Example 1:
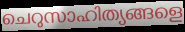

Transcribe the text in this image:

ചെറുസാഹിത്യങ്ങളെ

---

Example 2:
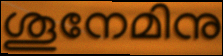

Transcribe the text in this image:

ശൂനേമിനു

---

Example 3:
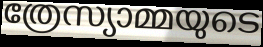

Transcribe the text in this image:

ത്രേസ്യാമ്മയുടെ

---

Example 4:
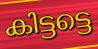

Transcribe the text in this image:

കിട്ടട്ടെ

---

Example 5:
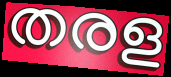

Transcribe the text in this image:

തരള